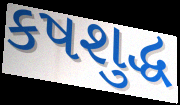
કષશુદ્ધ